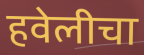
हवेलीचा